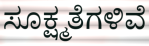
ಸೂಕ್ಷ್ಮತೆಗಳಿವೆ